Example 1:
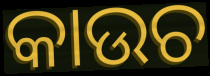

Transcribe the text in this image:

କାଉଚ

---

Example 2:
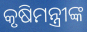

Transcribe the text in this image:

କୃଷିମନ୍ତ୍ରୀଙ୍କ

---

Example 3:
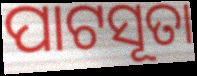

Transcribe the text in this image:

ପାଟସୂତା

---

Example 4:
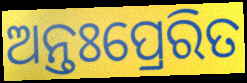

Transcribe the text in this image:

ଅନ୍ତଃପ୍ରେରିତ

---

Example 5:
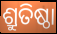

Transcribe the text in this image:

ଶ୍ରୁତିଷ୍ଠା